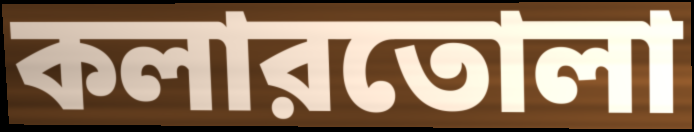
কলারতোলা